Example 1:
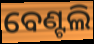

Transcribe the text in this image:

ବେଣ୍ଟଲି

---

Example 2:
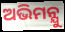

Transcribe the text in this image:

ଅଭିମନ୍ଯୁ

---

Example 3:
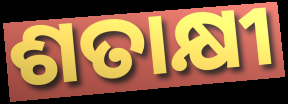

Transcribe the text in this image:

ଶତାକ୍ଷୀ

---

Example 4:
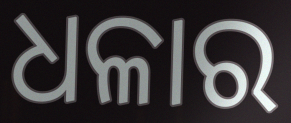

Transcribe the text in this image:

ଧଳାର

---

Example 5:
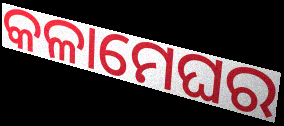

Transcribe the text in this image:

କଳାମେଘର